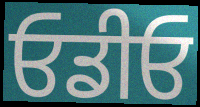
ਓਡੀਓ